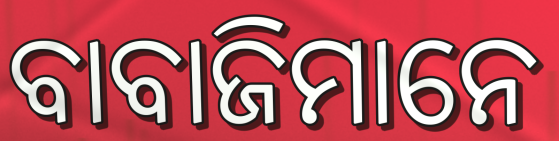
ବାବାଜିମାନେ